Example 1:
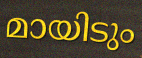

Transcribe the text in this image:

മായിടും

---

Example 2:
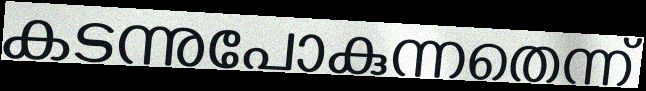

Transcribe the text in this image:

കടന്നുപോകുന്നതെന്ന്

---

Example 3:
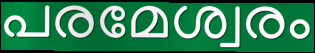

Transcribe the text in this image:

പരമേശ്വരം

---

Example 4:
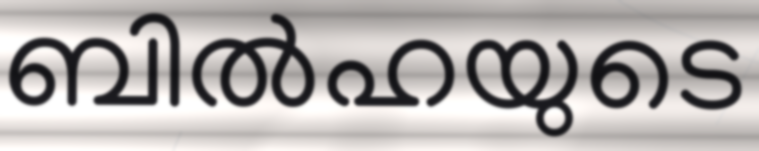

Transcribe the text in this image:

ബിൽഹയുടെ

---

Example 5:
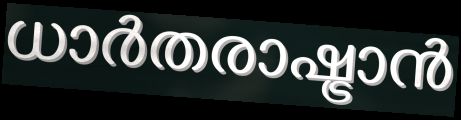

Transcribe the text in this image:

ധാർതരാഷ്ട്രാൻ